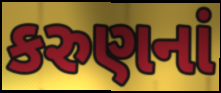
કરુણનાં